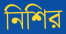
নিশির